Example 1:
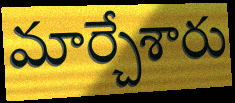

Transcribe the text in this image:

మార్చేశారు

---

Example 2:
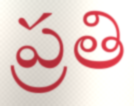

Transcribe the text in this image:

ప్రతి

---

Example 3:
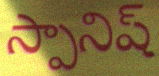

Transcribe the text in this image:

స్పానిష్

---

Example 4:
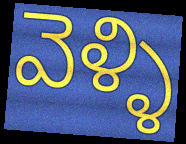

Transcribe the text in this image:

వెళ్ళి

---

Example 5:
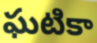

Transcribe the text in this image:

ఘటికా